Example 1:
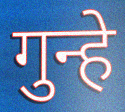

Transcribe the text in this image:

गुन्हे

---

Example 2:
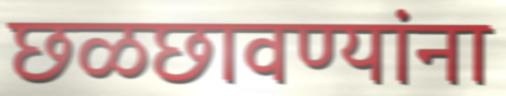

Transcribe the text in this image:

छळछावण्यांना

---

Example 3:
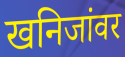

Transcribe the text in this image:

खनिजांवर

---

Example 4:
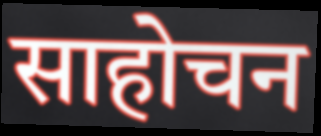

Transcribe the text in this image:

साहोचन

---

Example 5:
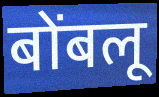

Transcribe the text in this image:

बोंबलू